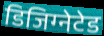
डिजिग्नेटेड